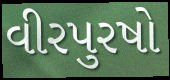
વીરપુરષો